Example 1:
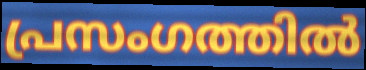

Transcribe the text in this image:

പ്രസംഗത്തിൽ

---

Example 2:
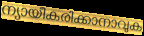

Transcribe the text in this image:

ന്യായീകരിക്കാനാവുക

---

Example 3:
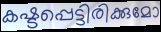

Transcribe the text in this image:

കഷ്ടപ്പെട്ടിരിക്കുമോ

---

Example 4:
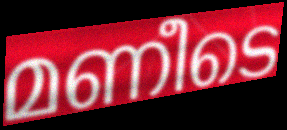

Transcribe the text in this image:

മണീടെ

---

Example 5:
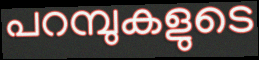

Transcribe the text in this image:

പറമ്പുകളുടെ